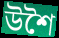
উশৈ